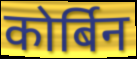
कोर्बिन